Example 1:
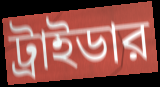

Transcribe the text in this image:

ট্রাইডার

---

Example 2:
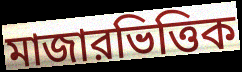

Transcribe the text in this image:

মাজারভিত্তিক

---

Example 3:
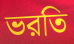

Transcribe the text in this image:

ভরতি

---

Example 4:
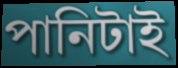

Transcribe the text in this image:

পানিটাই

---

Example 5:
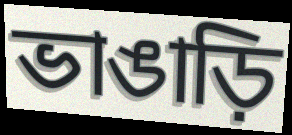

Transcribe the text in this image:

ভাঙাড়ি